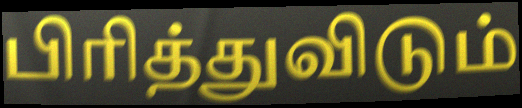
பிரித்துவிடும்